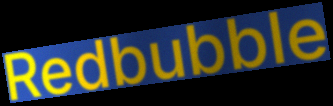
Redbubble